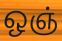
ஒஞ்